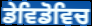
ਡੇਵਿਡੋਵਿਚ